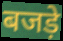
बजड़े